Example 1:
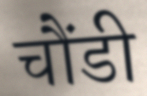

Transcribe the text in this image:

चौंडी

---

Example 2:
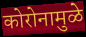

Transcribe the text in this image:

कोरोनामुळे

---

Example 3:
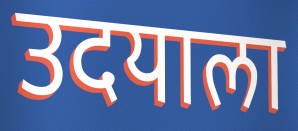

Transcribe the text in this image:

उदयाला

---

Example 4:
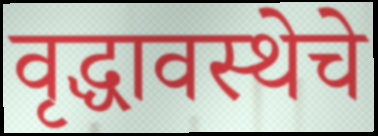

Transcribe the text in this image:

वृद्धावस्थेचे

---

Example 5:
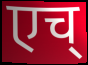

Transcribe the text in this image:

एच्